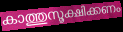
കാത്തുസൂക്ഷിക്കണം